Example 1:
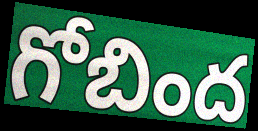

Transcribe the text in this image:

గోబింద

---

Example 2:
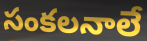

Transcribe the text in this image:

సంకలనాలే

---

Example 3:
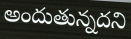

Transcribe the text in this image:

అందుతున్నదని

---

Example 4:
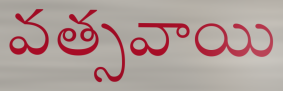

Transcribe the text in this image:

వత్సవాయి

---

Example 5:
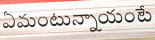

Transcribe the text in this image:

ఏమంటున్నాయంటే